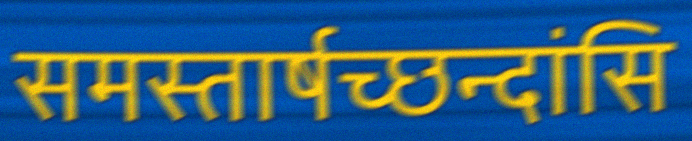
समस्तार्षच्छन्दांसि